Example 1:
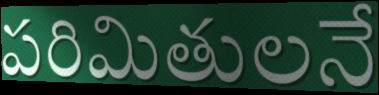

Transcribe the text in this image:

పరిమితులనే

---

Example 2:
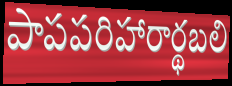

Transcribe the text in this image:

పాపపరిహారార్థబలి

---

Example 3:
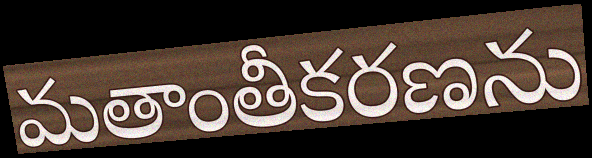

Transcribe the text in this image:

మతాంతీకరణను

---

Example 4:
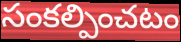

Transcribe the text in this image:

సంకల్పించటం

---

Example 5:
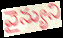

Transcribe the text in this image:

వైన్యుని